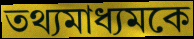
তথ্যমাধ্যমকে